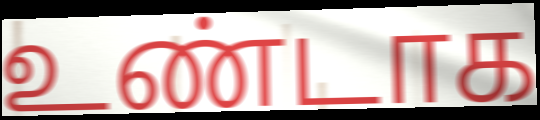
உண்டாக